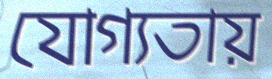
যোগ্যতায়